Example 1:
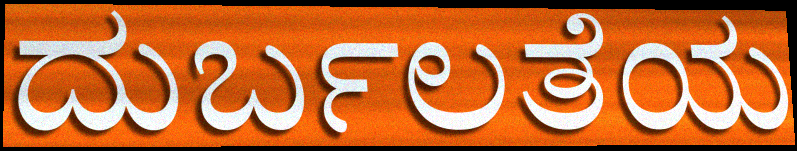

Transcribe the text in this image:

ದುರ್ಬಲತೆಯ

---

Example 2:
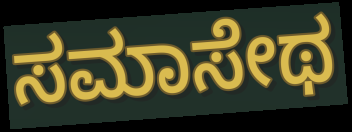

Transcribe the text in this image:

ಸಮಾಸೇಥ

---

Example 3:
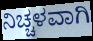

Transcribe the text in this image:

ನಿಚ್ಚಳವಾಗಿ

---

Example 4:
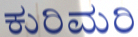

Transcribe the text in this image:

ಕುರಿಮರಿ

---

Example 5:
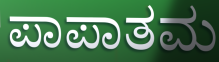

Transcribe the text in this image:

ಪಾಪಾತಮ